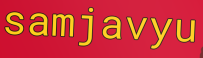
samjavyu